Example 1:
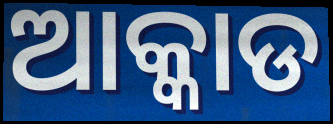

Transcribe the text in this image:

ଆକ୍କାଡ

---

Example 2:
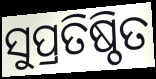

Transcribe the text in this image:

ସୁପ୍ରତିଷ୍ଠିତ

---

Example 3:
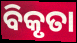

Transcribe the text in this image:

ବିକୃତା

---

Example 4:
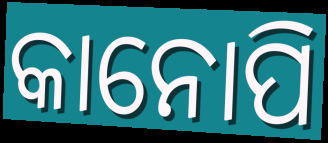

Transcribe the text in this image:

କାନୋପି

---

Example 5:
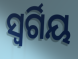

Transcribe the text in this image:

ସ୍ୱର୍ଗିୟ